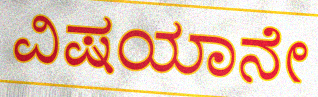
ವಿಷಯಾನೇ